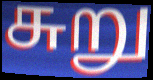
சுறு